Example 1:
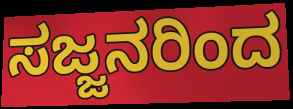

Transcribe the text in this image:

ಸಜ್ಜನರಿಂದ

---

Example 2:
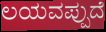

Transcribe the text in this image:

ಲಯವಪ್ಪುದೆ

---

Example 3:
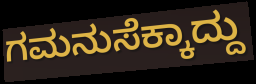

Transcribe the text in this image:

ಗಮನುಸೆಕ್ಕಾದ್ದು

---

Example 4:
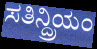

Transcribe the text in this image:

ಸತಿನ್ದ್ರಿಯಂ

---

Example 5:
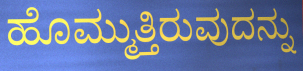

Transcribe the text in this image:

ಹೊಮ್ಮುತ್ತಿರುವುದನ್ನು